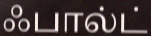
ஃபால்ட்